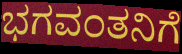
ಭಗವಂತನಿಗೆ